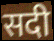
सदी